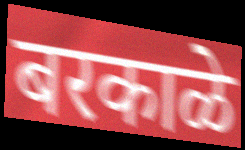
बरकाळे